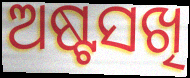
ଅଷ୍ଟସଖି